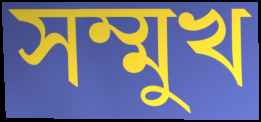
সম্মুখ